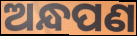
ଅନ୍ଧପଣ